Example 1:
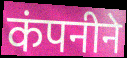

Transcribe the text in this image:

कंपनीने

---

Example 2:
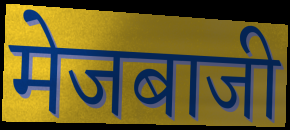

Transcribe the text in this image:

मेजबाजी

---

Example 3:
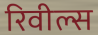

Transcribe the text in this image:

रिवील्स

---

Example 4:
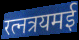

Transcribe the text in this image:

रत्नत्रयमई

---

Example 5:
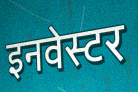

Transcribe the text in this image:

इनवेस्टर